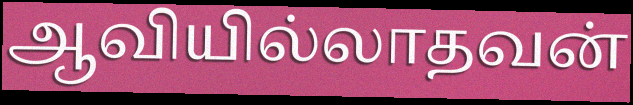
ஆவியில்லாதவன்